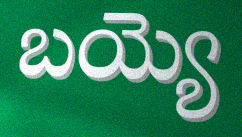
బయ్యె